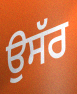
ਉਸੱਰ